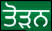
ਤੋੜਨ